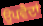
ਉਪਵੈਦਾਂ